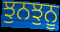
ਝੁਨਝੁਨੂ